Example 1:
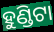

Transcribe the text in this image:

ହୁଣ୍ଡିଟା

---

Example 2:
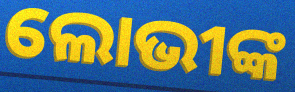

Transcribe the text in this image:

ଲୋଭୀଙ୍କ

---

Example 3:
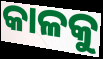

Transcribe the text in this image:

କାଳକୁ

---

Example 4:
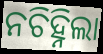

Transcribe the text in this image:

ନଚିହ୍ନିଲା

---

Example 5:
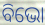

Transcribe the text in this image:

ବିଭୋ